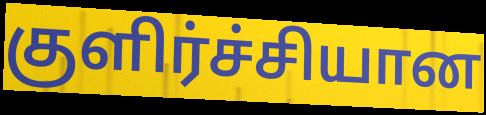
குளிர்ச்சியான